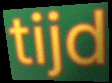
tijd